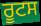
ਰੂਟਸ